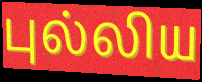
புல்லிய